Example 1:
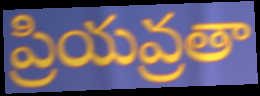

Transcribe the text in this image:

ప్రియవ్రతా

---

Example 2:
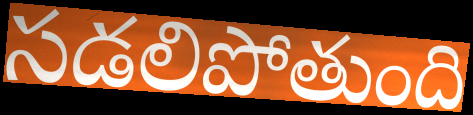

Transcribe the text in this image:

సడలిపోతుంది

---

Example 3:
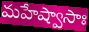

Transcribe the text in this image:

మహేష్వాసాః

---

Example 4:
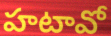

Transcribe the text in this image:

హటావో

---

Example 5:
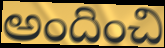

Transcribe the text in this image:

అందించి